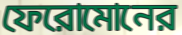
ফেরোমোনের